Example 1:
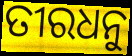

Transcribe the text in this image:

ତୀରଧନୁ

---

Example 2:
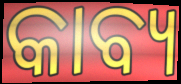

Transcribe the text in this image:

କାବ୍ୟ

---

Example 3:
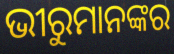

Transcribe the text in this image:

ଭୀରୁମାନଙ୍କର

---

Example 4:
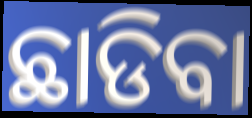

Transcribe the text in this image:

ଛାଡିବା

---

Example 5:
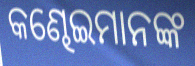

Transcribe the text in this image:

କଣ୍ଢେଇମାନଙ୍କ